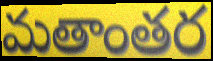
మతాంతర